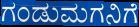
ಗಂಡುಮಗನಿಗೆ